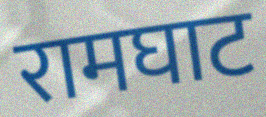
रामघाट